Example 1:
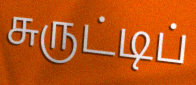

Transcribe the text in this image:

சுருட்டிப்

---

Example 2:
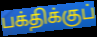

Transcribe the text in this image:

பக்திக்குப்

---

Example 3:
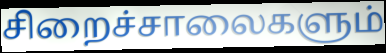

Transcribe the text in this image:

சிறைச்சாலைகளும்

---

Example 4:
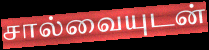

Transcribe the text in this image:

சால்வையுடன்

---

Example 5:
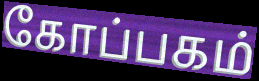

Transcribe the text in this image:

கோப்பகம்